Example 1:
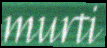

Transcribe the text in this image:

murti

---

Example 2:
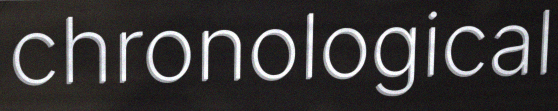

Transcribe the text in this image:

chronological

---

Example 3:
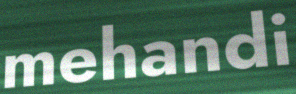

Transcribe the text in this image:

mehandi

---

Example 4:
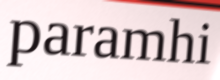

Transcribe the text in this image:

paramhi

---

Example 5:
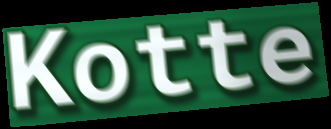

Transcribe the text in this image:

Kotte